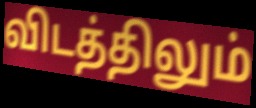
விடத்திலும்